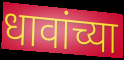
धावांच्या